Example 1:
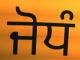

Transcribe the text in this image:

ਜੋਧੰ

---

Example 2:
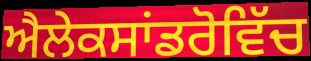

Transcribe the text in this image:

ਐਲੇਕਸਾਂਡਰੋਵਿੱਚ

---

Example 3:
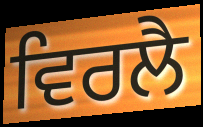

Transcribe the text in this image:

ਵਿਰਲੈ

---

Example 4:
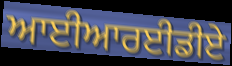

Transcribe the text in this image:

ਆਈਆਰਈਡੀਏ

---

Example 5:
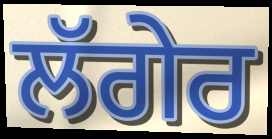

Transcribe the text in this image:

ਲੱਗੇਰ